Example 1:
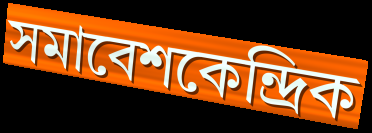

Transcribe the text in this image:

সমাবেশকেন্দ্রিক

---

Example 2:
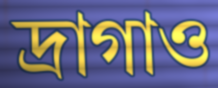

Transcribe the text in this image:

দ্রাগাও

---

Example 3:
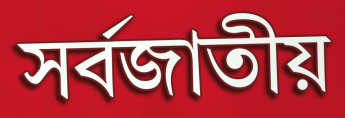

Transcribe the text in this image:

সর্বজাতীয়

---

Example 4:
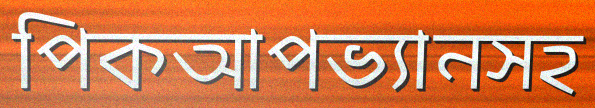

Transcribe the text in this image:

পিকআপভ্যানসহ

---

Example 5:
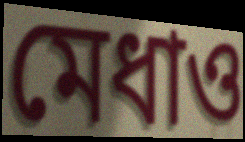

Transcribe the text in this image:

মেধাও